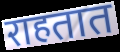
राहतात